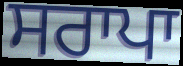
ਸਰਾਪਾ